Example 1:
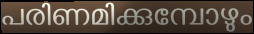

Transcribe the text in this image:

പരിണമിക്കുമ്പോഴും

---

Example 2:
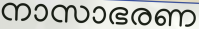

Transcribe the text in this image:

നാസാഭരണ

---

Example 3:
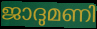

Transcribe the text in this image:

ജാദുമണി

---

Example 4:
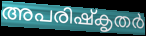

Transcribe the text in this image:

അപരിഷ്കൃതർ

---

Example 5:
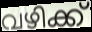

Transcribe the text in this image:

വഴിക്ക്